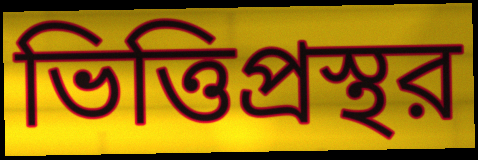
ভিত্তিপ্রস্থর